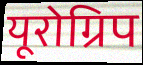
यूरोग्रिप